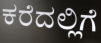
ಕರೆದಲ್ಲಿಗೆ